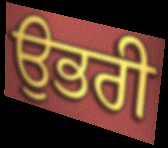
ਉਭਰੀ